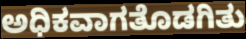
ಅಧಿಕವಾಗತೊಡಗಿತು